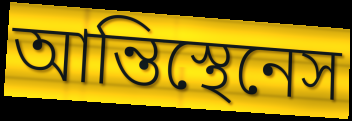
আন্তিস্থেনেস